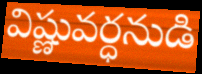
విష్ణువర్ధనుడి